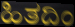
ಹಿತದಿಂ